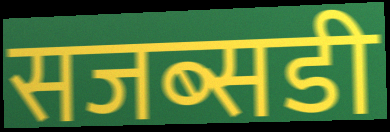
सजब्सडी